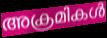
അക്രമികൾ